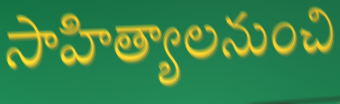
సాహిత్యాలనుంచి